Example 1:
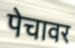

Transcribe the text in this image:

पेचावर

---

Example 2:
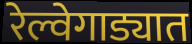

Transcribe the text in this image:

रेल्वेगाड्यात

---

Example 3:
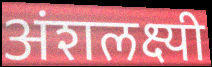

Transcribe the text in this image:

अंशलक्ष्यी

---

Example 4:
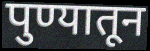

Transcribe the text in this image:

पुण्यातून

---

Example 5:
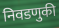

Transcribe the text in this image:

निवडणुकी